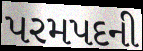
પરમપદની